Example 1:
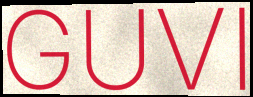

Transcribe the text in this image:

GUVI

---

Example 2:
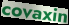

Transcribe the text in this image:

covaxin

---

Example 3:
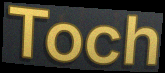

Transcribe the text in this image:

Toch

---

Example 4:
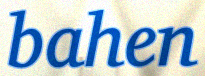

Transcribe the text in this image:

bahen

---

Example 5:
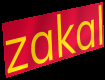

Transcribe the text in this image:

zakal